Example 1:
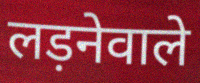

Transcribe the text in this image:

लड़नेवाले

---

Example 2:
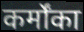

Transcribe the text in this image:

कर्मोंका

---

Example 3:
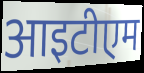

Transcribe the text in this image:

आइटीएम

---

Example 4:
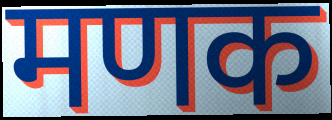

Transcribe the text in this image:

मणक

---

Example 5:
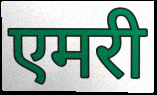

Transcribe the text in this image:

एमरी